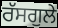
ਰੱਸਗੁਲੇ